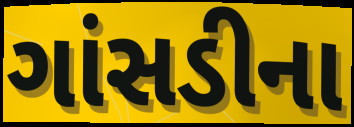
ગાંસડીના